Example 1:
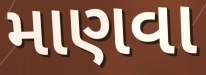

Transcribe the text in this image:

માણવા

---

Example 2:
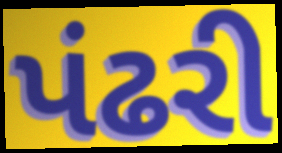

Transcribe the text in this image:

પંઢરી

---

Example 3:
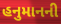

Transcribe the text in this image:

હનુમાનની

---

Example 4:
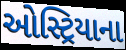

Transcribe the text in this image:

ઓસ્ટ્રિયાના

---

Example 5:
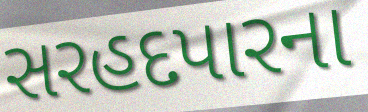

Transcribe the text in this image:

સરહદપારના